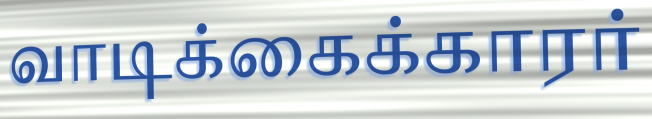
வாடிக்கைக்காரர்